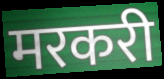
मरकरी